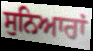
ਸੁਨਿਆਰਾਂ